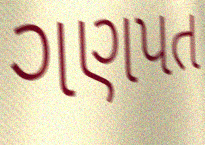
ગણપત